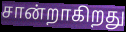
சான்றாகிறது